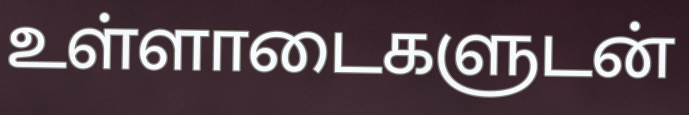
உள்ளாடைகளுடன்